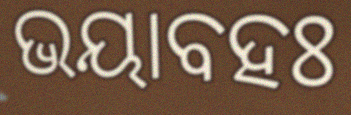
ଭୟାବହଃ